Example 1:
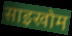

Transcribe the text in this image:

साइखोम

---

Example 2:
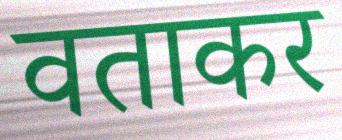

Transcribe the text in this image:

वताकर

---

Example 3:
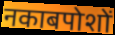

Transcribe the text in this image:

नकाबपोशों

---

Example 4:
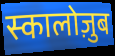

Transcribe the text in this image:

स्कालोज़ुब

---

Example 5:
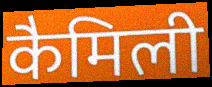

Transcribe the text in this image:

कैमिली